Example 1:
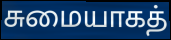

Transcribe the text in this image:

சுமையாகத்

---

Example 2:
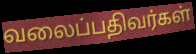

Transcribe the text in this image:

வலைப்பதிவர்கள்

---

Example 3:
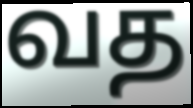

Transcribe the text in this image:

வத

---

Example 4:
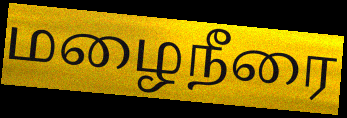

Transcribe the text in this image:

மழைநீரை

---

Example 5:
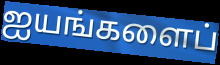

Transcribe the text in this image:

ஐயங்களைப்